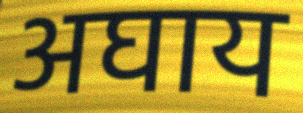
अघाय